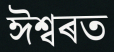
ঈশ্বৰত